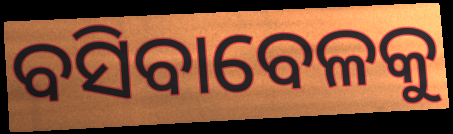
ବସିବାବେଳକୁ